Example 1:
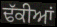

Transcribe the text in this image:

ਢੱਕੀਆਂ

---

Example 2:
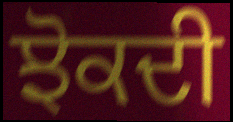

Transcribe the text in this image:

ਝੋਕਦੀ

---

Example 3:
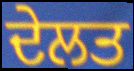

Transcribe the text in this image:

ਦੇਲਤ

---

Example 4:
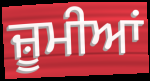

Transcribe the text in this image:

ਜ਼ੂਮੀਆਂ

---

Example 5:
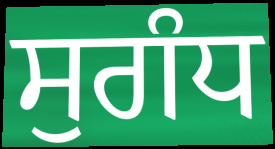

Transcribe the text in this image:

ਸੁਗੰਧ